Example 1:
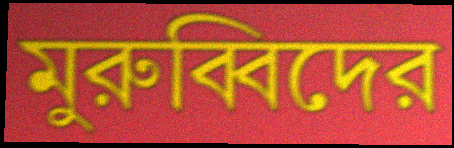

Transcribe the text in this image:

মুরুব্বিদের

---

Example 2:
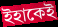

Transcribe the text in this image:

ইহাকেই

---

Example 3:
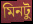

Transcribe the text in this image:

মিনটু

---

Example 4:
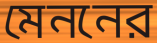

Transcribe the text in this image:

মেননের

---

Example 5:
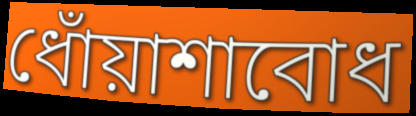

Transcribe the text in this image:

ধোঁয়াশাবোধ